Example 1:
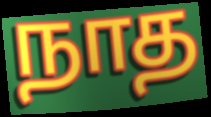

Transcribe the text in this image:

நாத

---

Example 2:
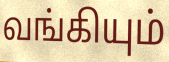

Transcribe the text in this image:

வங்கியும்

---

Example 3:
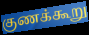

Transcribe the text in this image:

குணக்கூறு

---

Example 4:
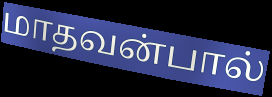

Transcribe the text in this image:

மாதவன்பால்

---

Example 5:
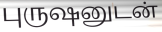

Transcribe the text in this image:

புருஷனுடன்